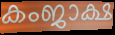
കംജാക്ഷ